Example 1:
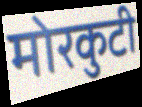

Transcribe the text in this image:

मोरकुटी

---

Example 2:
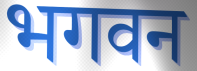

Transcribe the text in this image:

भगवन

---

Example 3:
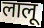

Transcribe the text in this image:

लालू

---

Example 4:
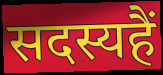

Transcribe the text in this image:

सदस्यहैं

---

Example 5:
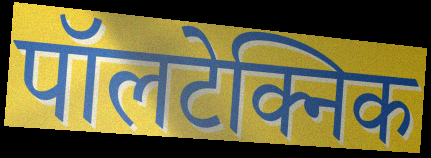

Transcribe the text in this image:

पॉलटेक्निक